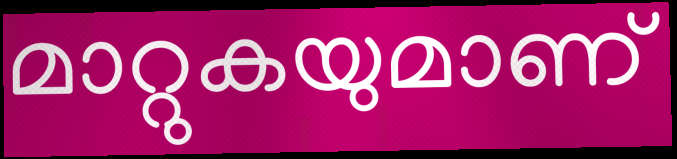
മാറ്റുകയുമാണ്